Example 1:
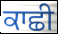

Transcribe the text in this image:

ਕਾਛੀ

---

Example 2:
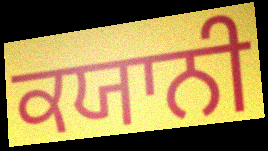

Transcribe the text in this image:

ਕਯਾਨੀ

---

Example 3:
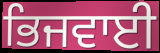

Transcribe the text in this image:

ਭਿਜਵਾਈ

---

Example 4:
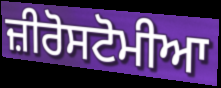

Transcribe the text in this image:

ਜ਼ੀਰੋਸਟੋਮੀਆ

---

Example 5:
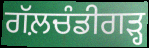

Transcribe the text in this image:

ਗੱਲ਼ਚੰਡੀਗੜ੍ਹ